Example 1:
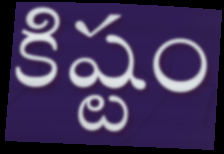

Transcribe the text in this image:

కిష్టం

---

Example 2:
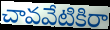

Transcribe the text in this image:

చావవేటికిరా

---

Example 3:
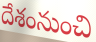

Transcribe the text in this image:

దేశంనుంచి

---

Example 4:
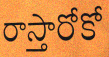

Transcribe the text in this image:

రాస్తారోకో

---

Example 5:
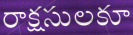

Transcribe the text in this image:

రాక్షసులకూ